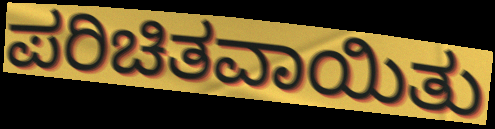
ಪರಿಚಿತವಾಯಿತು